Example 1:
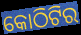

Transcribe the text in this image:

କୋଠିଟିର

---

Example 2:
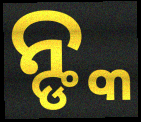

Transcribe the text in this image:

ନ୍ଙ୍କ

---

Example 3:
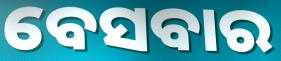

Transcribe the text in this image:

ବେସବାର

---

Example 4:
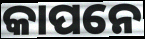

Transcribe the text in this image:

କାପନେ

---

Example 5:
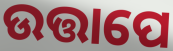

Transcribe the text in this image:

ଉତ୍ତାପେ